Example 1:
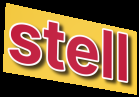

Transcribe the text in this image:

stell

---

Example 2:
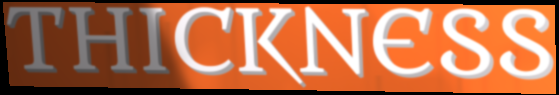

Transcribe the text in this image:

THICKNESS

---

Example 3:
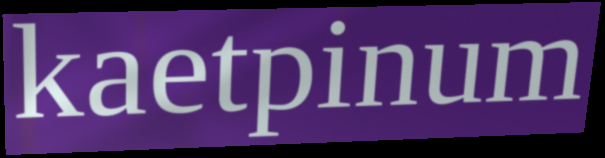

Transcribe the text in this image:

kaetpinum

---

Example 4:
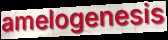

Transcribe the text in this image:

amelogenesis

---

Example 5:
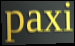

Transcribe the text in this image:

paxi